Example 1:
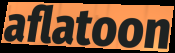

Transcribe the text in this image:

aflatoon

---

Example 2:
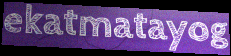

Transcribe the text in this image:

ekatmatayog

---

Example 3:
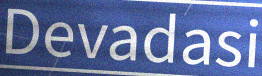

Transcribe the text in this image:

Devadasi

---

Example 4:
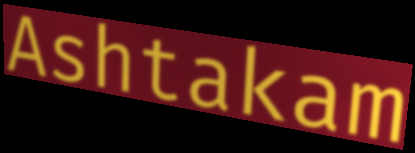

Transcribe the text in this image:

Ashtakam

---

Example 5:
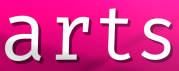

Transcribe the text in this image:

arts